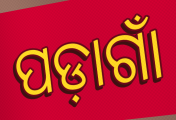
ପଡ଼ାଗାଁ